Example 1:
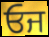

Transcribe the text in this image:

ਓਜ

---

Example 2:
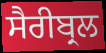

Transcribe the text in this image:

ਸੈਰੀਬ੍ਰਲ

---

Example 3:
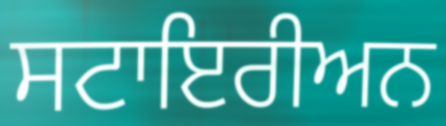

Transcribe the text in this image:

ਸਟਾਇਰੀਅਨ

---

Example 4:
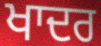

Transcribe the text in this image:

ਖਾਦਰ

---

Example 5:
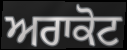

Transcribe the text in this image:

ਅਰਾਕੋਟ